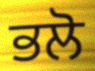
ਭਲੋ